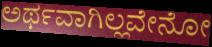
ಅರ್ಥವಾಗಿಲ್ಲವೇನೋ